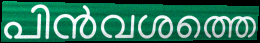
പിൻവശത്തെ